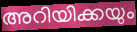
അറിയിക്കയും